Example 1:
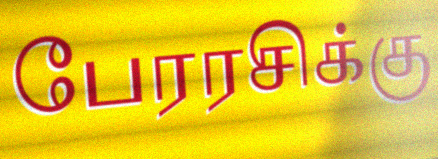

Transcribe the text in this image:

பேரரசிக்கு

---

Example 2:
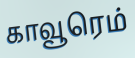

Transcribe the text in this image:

காவூரெம்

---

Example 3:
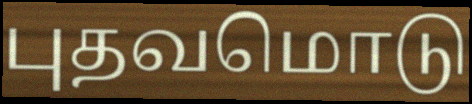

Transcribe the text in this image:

புதவமொடு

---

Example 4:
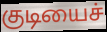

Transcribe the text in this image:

குடியைச்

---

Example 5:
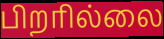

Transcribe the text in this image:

பிறரில்லை